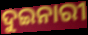
ଦୁଇନାରୀ